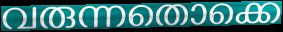
വരുന്നതൊക്കെ